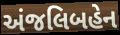
અંજલિબહેન